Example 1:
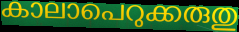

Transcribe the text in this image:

കാലാപെറുക്കരുതു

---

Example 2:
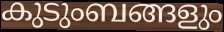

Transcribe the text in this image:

കുടുംബങ്ങളും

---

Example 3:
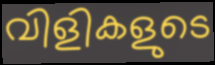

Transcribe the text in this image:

വിളികളുടെ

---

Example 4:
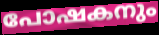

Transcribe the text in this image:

പോഷകനും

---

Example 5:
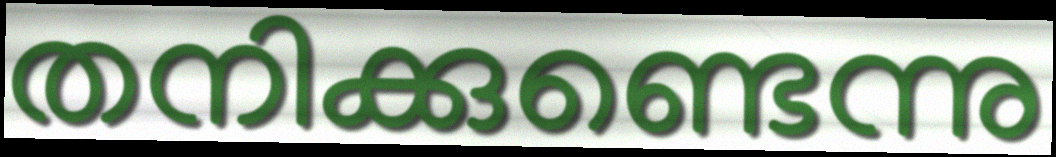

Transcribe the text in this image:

തനിക്കുണ്ടെന്നു